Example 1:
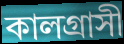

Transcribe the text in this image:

কালগ্রাসী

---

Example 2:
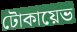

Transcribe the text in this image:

টোকায়েভ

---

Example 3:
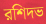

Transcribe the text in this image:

রশিদভ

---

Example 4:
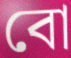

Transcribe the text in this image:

বো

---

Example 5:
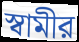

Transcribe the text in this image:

স্বামীর